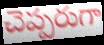
చెప్పరుగా